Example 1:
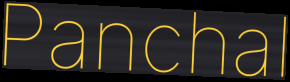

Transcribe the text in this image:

Panchal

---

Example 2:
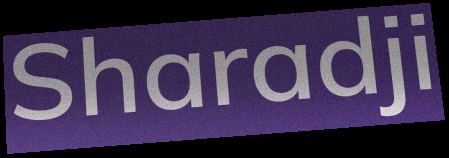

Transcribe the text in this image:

Sharadji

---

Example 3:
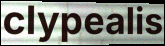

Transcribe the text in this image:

clypealis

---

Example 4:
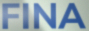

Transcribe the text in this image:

FINA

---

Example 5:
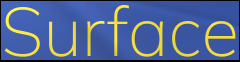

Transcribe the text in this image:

Surface